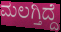
ಮಲಗ್ತಿದ್ದೆ